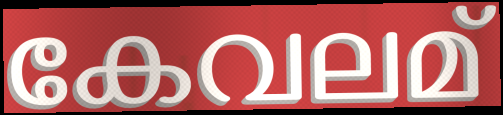
കേവലമ്